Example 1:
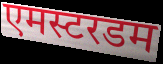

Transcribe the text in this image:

एमस्टरडम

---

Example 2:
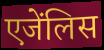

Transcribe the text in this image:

एजेंलिस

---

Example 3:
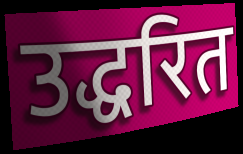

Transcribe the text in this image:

उद्धरित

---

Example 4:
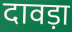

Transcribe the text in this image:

दावड़ा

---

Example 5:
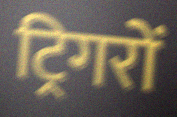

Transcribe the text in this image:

ट्रिगरों